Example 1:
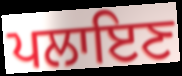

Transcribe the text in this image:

ਪਲਾਇਣ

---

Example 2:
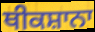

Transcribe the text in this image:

ਥੀਕਸ਼ਾਨਾ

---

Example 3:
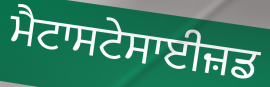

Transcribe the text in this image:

ਮੈਟਾਸਟੇਸਾਈਜ਼ਡ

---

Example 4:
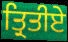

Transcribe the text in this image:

ਤ੍ਰਿਤੀਏ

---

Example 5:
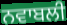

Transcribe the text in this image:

ਨਵਾਬਲੀ